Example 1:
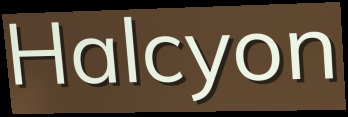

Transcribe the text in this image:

Halcyon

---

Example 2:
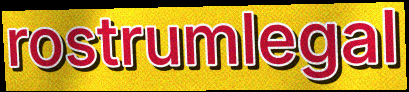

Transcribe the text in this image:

rostrumlegal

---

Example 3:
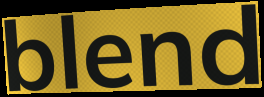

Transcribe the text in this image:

blend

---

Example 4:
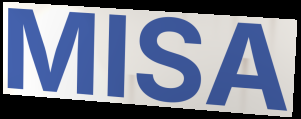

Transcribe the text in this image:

MISA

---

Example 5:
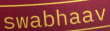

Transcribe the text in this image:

swabhaav